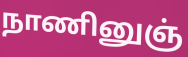
நாணினுஞ்